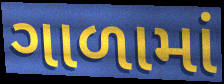
ગાળામાં